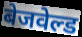
बेजवेल्ड